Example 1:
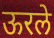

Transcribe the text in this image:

ऊरले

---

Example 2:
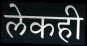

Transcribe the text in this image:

लेकही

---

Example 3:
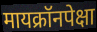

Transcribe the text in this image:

मायक्रॉनपेक्षा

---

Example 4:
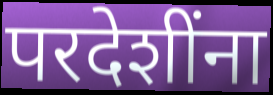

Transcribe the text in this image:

परदेशींना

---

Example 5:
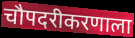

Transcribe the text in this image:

चौपदरीकरणाला